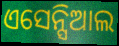
ଏସେନ୍ସିଆଲ